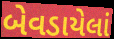
બેવડાયેલાં